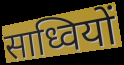
साध्वियों